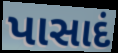
પાસાદં